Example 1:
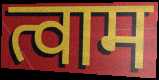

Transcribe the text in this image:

त्वाम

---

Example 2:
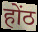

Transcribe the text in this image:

होंठ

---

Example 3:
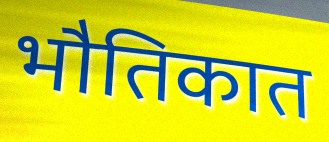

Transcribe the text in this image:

भौतिकात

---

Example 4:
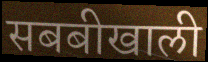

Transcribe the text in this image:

सबबीखाली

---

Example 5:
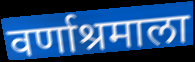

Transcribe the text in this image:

वर्णाश्रमाला